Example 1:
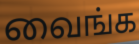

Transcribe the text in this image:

வைங்க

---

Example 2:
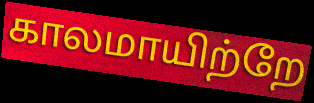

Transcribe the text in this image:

காலமாயிற்றே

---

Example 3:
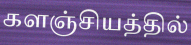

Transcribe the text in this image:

களஞ்சியத்தில்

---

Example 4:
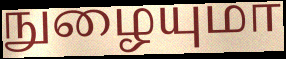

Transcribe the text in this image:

நுழையுமா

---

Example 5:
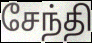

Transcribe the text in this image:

சேந்தி